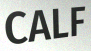
CALF